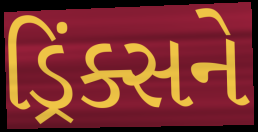
ડ્રિંક્સને